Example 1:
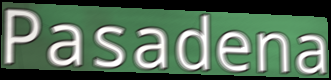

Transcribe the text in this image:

Pasadena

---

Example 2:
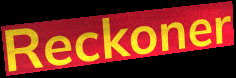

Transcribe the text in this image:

Reckoner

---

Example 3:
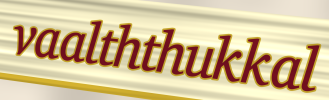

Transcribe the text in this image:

vaalththukkal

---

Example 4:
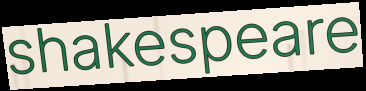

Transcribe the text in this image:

shakespeare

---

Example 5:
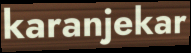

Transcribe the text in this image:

karanjekar